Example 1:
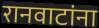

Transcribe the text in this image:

रानवाटांना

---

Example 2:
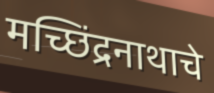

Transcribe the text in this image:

मच्छिंद्रनाथाचे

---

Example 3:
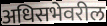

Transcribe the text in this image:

अधिसभेवरील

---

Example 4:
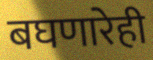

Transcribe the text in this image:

बघणारेही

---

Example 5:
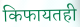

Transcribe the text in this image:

किफायतही